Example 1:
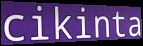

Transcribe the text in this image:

cikinta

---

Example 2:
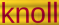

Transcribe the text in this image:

knoll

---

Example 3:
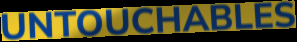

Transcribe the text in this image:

UNTOUCHABLES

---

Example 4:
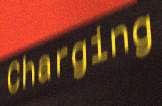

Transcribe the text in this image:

Charging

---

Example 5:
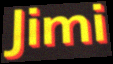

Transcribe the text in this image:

Jimi